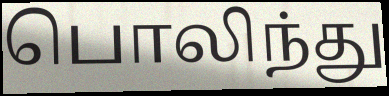
பொலிந்து